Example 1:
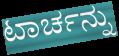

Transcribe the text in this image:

ಟಾರ್ಚನ್ನು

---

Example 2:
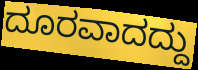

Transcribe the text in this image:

ದೂರವಾದದ್ದು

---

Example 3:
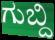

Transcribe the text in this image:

ಗುಬ್ದಿ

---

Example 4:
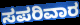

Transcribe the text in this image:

ಸಪರಿವಾರ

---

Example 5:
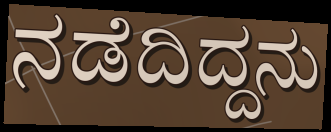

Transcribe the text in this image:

ನಡೆದಿದ್ದನು